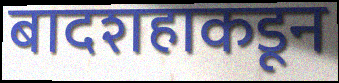
बादशहाकडून